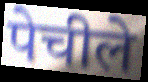
पेचीले